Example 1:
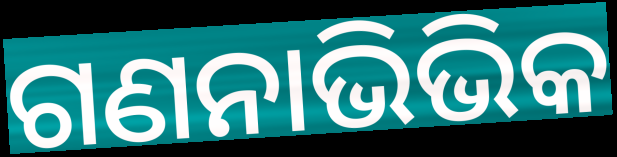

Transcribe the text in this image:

ଗଣନାଭିଭିକ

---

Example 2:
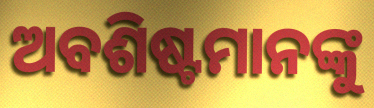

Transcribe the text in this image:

ଅବଶିଷ୍ଟମାନଙ୍କୁ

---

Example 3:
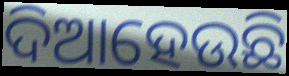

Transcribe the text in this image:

ଦିଆହେଉଛି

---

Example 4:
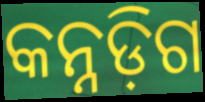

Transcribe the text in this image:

କନ୍ନଡ଼ିଗ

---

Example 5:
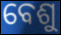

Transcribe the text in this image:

ବେଶୁ